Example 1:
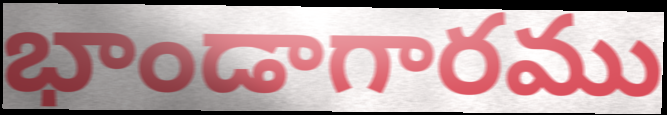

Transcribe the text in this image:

భాండాగారము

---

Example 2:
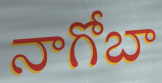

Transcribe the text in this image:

నాగోబా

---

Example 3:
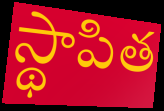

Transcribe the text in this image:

స్థాపిత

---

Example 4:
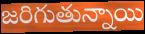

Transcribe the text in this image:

జరిగుతున్నాయి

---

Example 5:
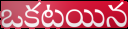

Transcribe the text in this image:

ఒకటయిన